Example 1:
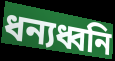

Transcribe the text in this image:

ধন্যধ্বনি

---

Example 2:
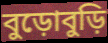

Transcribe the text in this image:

বুড়োবুড়ি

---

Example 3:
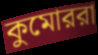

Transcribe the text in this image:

কুমোররা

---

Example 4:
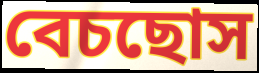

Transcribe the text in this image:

বেচছোস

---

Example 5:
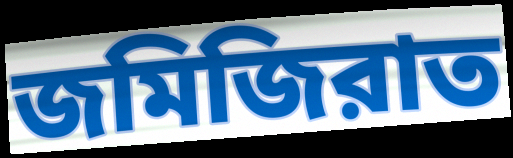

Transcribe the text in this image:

জমিজিরাত